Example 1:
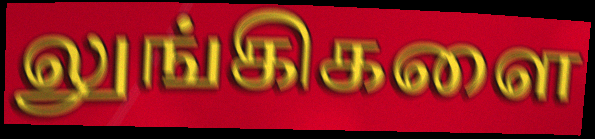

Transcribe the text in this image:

லுங்கிகளை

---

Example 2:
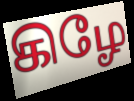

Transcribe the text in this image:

கிழே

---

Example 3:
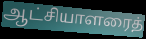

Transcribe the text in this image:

ஆட்சியாளரைத்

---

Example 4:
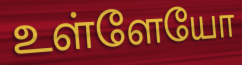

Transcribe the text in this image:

உள்ளேயோ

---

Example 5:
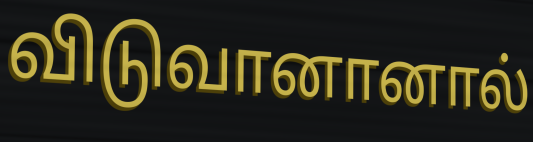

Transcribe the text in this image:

விடுவானானால்